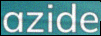
azide